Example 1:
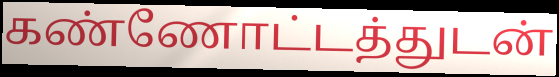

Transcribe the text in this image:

கண்ணோட்டத்துடன்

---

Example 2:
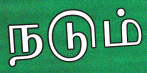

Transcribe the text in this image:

நடும்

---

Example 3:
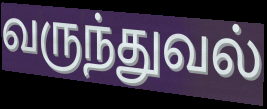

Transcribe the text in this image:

வருந்துவல்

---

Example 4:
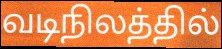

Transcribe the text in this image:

வடிநிலத்தில்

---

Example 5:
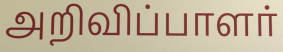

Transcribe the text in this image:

அறிவிப்பாளர்